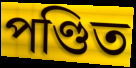
পণ্ডিত